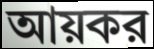
আয়কর